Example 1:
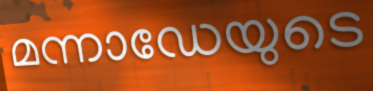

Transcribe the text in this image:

മന്നാഡേയുടെ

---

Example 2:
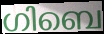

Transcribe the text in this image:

ഗിബെ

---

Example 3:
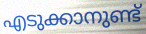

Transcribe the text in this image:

എടുക്കാനുണ്ട്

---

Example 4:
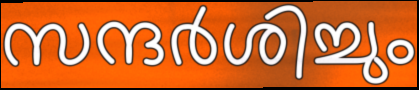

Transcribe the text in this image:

സന്ദർശിച്ചും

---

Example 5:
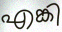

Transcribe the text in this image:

എങ്കി